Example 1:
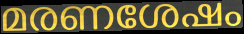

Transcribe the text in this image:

മരണശേഷം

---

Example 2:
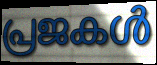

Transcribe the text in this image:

പ്രജകൾ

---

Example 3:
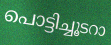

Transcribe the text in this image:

പൊട്ടിച്ചൂടറാ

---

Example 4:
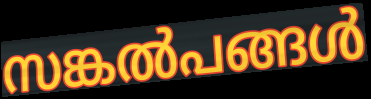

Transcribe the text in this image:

സങ്കൽപങ്ങൾ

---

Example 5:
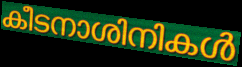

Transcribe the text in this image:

കീടനാശിനികൾ